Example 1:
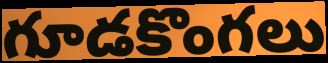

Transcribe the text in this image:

గూడకొంగలు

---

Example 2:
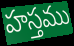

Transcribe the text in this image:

హస్తము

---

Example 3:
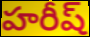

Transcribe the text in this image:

హరీష్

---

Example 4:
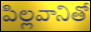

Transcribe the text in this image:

పిల్లవానితో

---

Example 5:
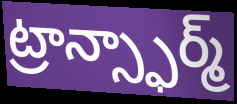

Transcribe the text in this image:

ట్రాన్స్ఫార్మ్